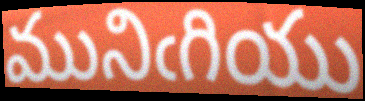
మునిఁగియు